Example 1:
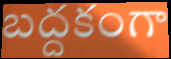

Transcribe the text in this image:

బద్దకంగా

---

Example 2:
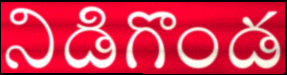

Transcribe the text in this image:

నిడిగొండ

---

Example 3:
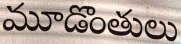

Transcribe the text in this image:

మూడొంతులు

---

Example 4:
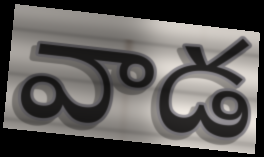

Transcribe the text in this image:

వాడ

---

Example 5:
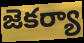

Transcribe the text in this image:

జెకర్యా